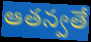
ఆతన్వతే